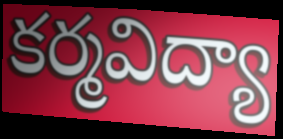
కర్మవిద్యా